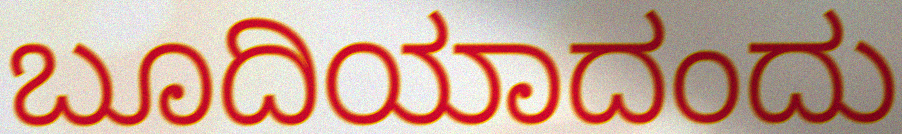
ಬೂದಿಯಾದಂದು